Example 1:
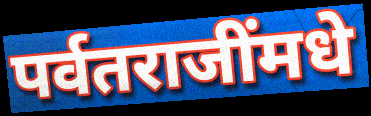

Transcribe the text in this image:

पर्वतराजींमधे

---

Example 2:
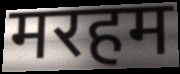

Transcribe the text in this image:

मरहम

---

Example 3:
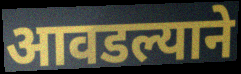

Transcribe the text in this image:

आवडल्याने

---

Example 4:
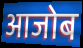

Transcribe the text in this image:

आजोब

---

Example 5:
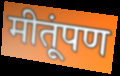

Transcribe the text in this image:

मीतूंपण